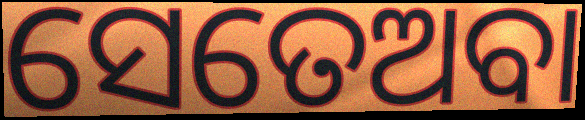
ସେତେଅବା